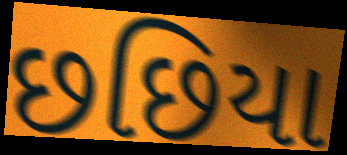
છછિયા